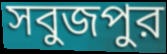
সবুজপুর